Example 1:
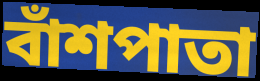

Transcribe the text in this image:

বাঁশপাতা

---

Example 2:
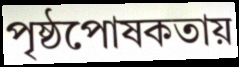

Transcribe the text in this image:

পৃষ্ঠপোষকতায়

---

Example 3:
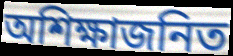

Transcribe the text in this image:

অশিক্ষাজনিত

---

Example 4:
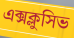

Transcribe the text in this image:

এক্সক্লুসিভ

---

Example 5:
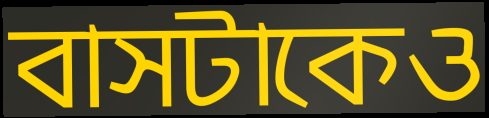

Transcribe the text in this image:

বাসটাকেও